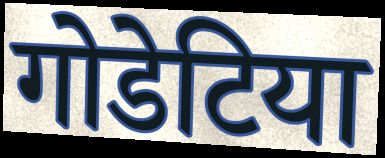
गोडेटिया